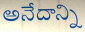
అనేదాన్ని